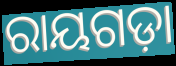
ରାୟଗଡ଼ା